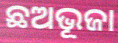
ଛଅଭୂଜା